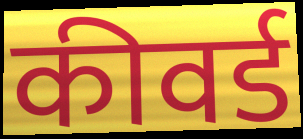
कीवर्ड